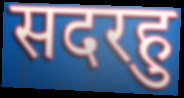
सदरहु